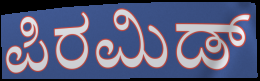
ಪಿರಮಿಡ್